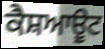
ਕੈਸ਼ਆਊਟ